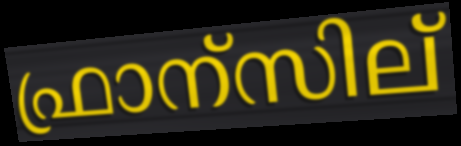
ഫ്രാന്സില്